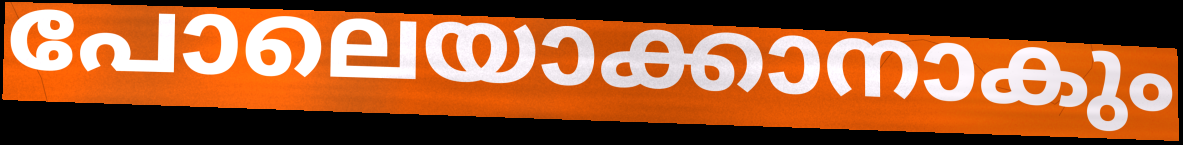
പോലെയാക്കാനാകും